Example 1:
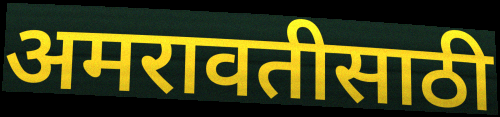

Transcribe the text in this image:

अमरावतीसाठी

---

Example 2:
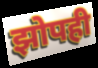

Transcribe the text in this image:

झोपही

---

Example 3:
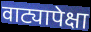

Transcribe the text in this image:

वाट्यापेक्षा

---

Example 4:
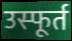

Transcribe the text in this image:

उस्फूर्त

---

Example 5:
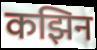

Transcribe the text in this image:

कझिन